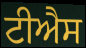
ਟੀਐਸ